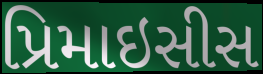
પ્રિમાઇસીસ